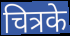
चित्रके